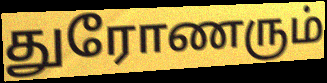
துரோணரும்